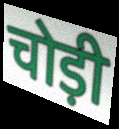
चोड़ी